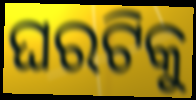
ଘରଟିକୁ